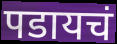
पडायचं